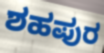
ಶಹಪುರ